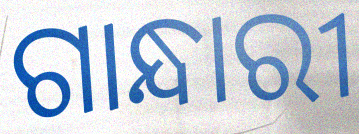
ଗାନ୍ଧାରୀ